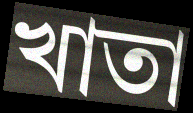
খাতা